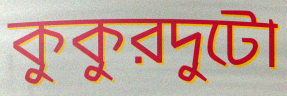
কুকুরদুটো